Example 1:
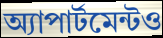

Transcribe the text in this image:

অ্যাপার্টমেন্টও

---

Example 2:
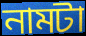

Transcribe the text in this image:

নামটা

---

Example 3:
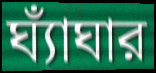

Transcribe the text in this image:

ঘ্যাঁঘার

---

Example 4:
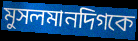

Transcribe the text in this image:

মুসলমানদিগকে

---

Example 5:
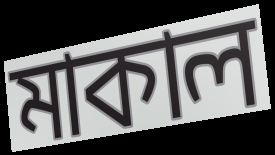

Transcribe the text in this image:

মাকাল